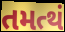
તમત્થં